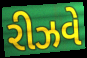
રીઝવે